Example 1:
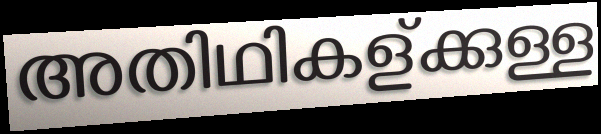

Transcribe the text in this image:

അതിഥികള്ക്കുള്ള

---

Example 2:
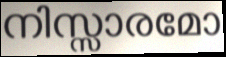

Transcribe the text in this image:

നിസ്സാരമോ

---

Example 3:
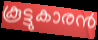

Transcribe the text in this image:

കൂട്ടുകാരൻ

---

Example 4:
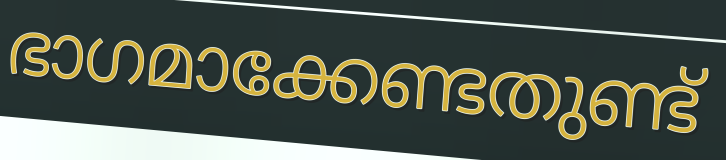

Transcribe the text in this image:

ഭാഗമാക്കേണ്ടതുണ്ട്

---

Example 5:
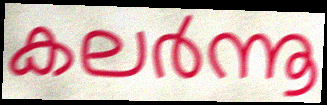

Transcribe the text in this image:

കലർന്നൂ